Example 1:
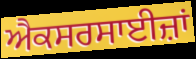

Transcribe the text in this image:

ਐਕਸਰਸਾਈਜ਼ਾਂ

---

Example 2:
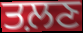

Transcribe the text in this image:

ਤਲ਼ਣ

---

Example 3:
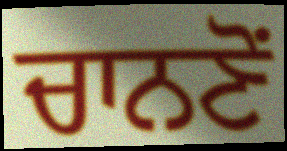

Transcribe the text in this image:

ਚਾਨਣੋਂ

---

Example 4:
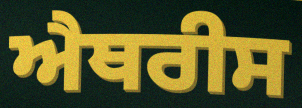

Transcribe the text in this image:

ਐਥਰੀਸ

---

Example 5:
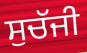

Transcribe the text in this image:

ਸੁਚੱਜੀ